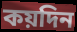
কয়দিন